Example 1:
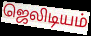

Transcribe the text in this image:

ஜெலிடியம்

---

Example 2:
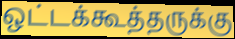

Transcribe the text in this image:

ஒட்டக்கூத்தருக்கு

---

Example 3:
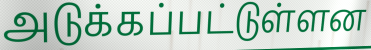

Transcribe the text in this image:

அடுக்கப்பட்டுள்ளன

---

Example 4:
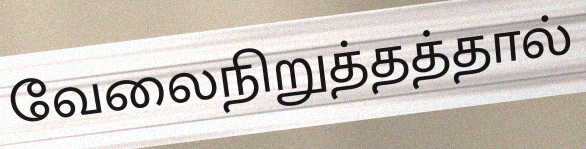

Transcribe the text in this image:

வேலைநிறுத்தத்தால்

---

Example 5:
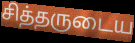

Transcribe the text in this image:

சித்தருடைய